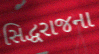
સિદ્ધરાજના